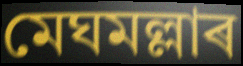
মেঘমল্লাৰ